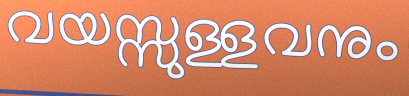
വയസ്സുള്ളവനും